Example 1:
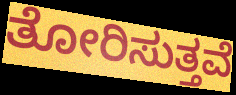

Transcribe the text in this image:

ತೋರಿಸುತ್ತವೆ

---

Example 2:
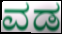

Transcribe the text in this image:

ವಡ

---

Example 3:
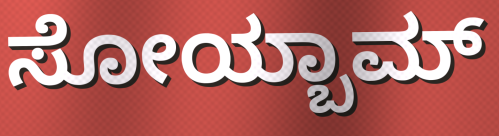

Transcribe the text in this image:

ಸೋಯ್ಬಾಮ್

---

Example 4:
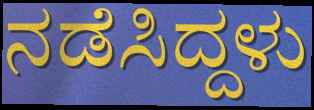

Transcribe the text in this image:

ನಡೆಸಿದ್ದಳು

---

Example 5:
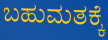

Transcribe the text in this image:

ಬಹುಮತಕ್ಕೆ